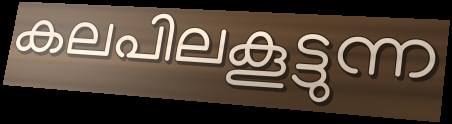
കലപിലകൂട്ടുന്ന